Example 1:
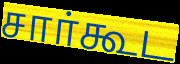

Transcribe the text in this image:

சார்கூட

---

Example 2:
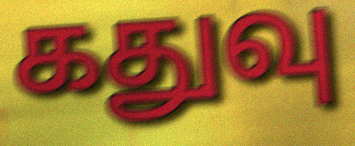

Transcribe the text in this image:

கதுவு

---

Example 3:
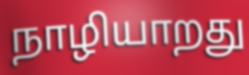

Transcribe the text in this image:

நாழியாறது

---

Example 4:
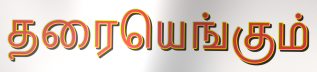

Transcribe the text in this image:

தரையெங்கும்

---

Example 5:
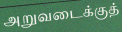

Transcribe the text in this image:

அறுவடைக்குத்